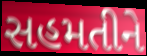
સહમતીને